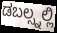
ಡಬಲ್ಸ್ನಲ್ಲಿ